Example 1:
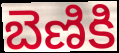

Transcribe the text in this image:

బెణికి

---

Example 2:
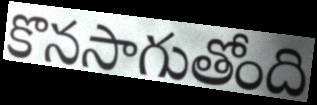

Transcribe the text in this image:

కొనసాగుతోంది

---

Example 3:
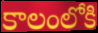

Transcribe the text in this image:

కాలంలోకి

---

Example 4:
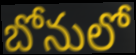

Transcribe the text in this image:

బోనులో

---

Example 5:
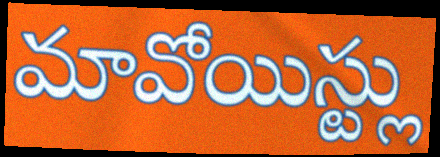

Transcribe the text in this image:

మావోయిస్ట్లు